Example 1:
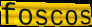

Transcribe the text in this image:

foscos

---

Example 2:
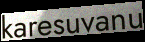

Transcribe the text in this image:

karesuvanu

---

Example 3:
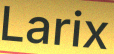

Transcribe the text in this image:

Larix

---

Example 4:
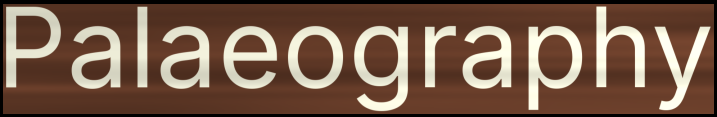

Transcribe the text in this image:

Palaeography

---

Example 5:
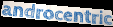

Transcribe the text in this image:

androcentric